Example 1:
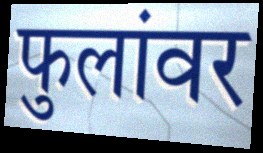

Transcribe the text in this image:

फुलांवर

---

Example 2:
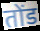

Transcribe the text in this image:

तोंड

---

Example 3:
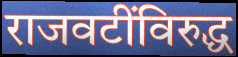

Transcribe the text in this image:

राजवटींविरुद्ध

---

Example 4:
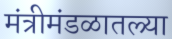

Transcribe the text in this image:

मंत्रीमंडळातल्या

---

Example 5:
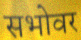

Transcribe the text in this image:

सभोवर